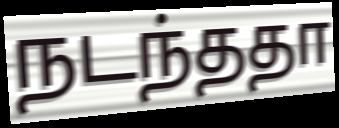
நடந்ததா